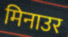
मिनाउर